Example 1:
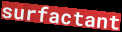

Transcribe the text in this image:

surfactant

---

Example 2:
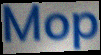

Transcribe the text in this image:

Mop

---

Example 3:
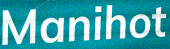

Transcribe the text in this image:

Manihot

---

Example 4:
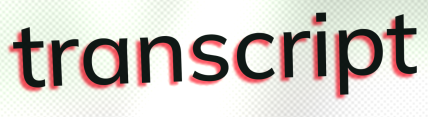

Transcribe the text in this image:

transcript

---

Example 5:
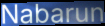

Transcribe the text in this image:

Nabarun